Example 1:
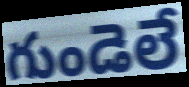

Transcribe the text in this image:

గుండెలే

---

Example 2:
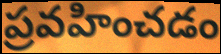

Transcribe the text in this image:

ప్రవహించడం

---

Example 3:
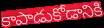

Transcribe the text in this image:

కాపాడుకోడానికి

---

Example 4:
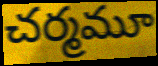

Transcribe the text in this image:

చర్మమూ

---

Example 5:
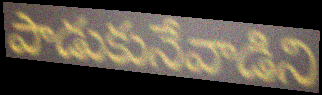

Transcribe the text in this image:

పాడుకునేవాడిని